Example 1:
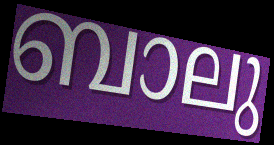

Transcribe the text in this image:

ബാലു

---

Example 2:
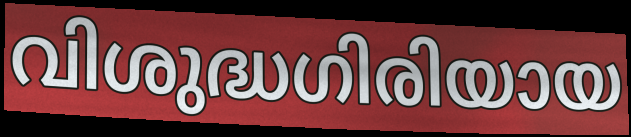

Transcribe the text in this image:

വിശുദ്ധഗിരിയായ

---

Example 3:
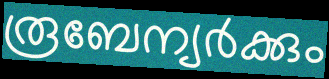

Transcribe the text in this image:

രൂബേന്യർക്കും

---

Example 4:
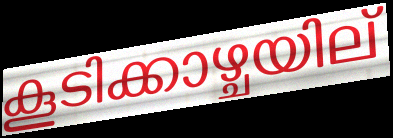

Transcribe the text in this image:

കൂടിക്കാഴ്ചയില്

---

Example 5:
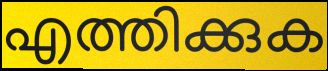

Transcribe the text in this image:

എത്തിക്കുക